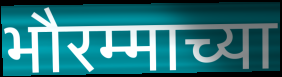
भौरम्माच्या